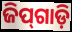
ଜିପ୍‍ଗାଡ଼ି